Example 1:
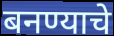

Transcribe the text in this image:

बनण्याचे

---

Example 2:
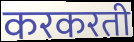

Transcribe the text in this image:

करकरती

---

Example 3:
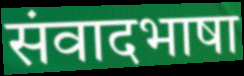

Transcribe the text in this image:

संवादभाषा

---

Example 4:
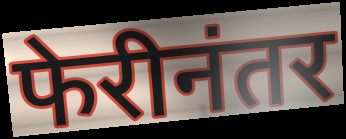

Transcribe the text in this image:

फेरीनंतर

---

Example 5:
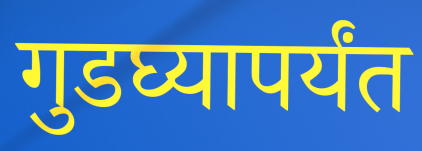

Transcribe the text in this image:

गुडघ्यापर्यंत